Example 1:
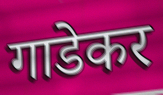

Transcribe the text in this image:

गाडेकर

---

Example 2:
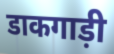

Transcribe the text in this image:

डाकगाड़ी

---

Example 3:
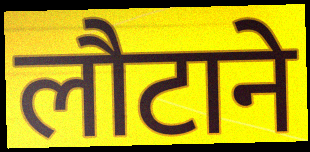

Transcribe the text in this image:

लौटाने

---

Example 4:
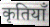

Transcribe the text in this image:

कृतियाँ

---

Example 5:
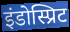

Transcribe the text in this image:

इंडोस्प्रिट